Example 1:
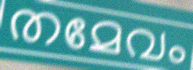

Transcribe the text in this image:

തമേവം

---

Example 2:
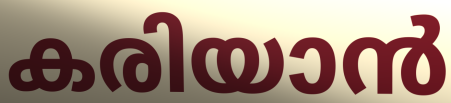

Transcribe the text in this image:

കരിയാൻ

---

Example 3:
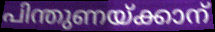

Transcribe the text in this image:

പിന്തുണയ്ക്കാന്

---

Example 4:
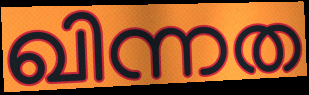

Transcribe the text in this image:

ഖിന്നത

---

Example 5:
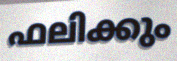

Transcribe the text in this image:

ഫലിക്കും